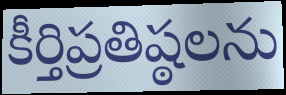
కీర్తిప్రతిష్ఠలను